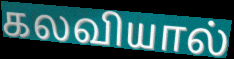
கலவியால்